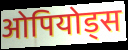
ओपियोड्स